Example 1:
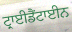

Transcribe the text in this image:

ਟ੍ਰਾਈਡੈਂਟਾਈਨ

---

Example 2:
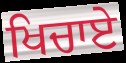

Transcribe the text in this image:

ਖਿਚਾਏ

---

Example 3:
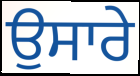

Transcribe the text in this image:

ਉਸਾਰੇ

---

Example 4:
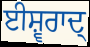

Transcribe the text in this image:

ਈਸ਼੍ਵਰਾਦ੍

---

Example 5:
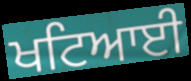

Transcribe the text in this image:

ਖਟਿਆਈ